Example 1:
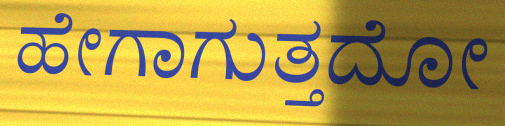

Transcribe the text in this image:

ಹೇಗಾಗುತ್ತದೋ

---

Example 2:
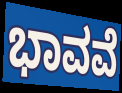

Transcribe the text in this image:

ಭಾವವೆ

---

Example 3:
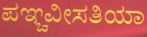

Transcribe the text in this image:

ಪಞ್ಚವೀಸತಿಯಾ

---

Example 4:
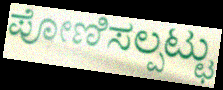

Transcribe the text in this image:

ಪೋಣಿಸಲ್ಪಟ್ಟು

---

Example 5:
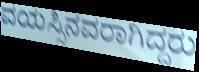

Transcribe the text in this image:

ವಯಸ್ಸಿನವರಾಗಿದ್ದರು